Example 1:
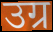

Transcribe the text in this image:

उग्र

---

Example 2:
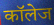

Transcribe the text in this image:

कॉलेज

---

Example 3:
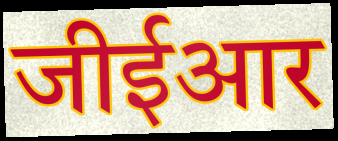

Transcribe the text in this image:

जीईआर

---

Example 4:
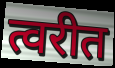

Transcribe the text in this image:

त्वरीत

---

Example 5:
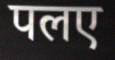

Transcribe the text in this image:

पलए